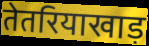
तेतरियाखाड़